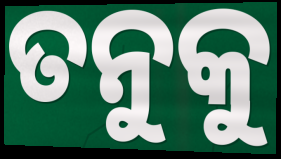
ତନୁକୁ